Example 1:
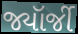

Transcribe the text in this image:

જ્યૉર્જી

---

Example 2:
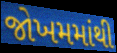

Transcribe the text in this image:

જોખમમાંથી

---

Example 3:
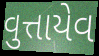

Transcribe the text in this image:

વુત્તાયેવ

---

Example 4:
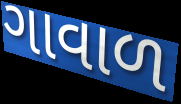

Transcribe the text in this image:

ગાવાળ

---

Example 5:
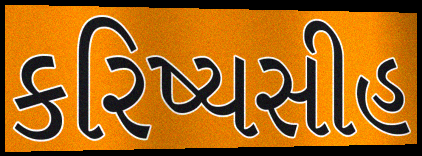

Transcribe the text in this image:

કરિષ્યસીહ